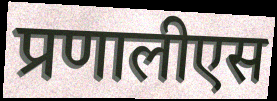
प्रणालीएस